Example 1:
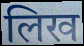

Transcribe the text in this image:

लिख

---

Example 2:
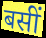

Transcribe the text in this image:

बसीं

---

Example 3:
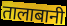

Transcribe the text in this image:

तालाबानी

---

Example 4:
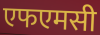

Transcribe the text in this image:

एफएमसी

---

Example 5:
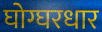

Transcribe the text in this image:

घोग्घरधार